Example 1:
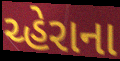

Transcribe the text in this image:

ચ્હેરાના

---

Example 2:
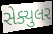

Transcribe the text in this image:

સેક્યુલર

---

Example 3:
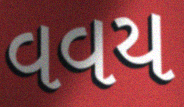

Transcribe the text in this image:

વવય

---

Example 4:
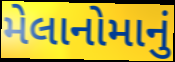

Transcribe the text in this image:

મેલાનોમાનું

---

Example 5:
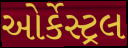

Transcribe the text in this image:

ઓર્કેસ્ટ્રલ